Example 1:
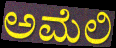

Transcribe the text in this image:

ಅಮೆಲಿ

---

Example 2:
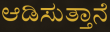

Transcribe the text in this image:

ಆಡಿಸುತ್ತಾನೆ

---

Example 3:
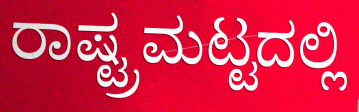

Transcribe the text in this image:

ರಾಷ್ಟ್ರಮಟ್ಟದಲ್ಲಿ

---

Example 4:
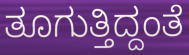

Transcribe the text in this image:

ತೂಗುತ್ತಿದ್ದಂತೆ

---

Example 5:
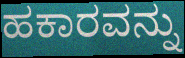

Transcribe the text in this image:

ಹಕಾರವನ್ನು